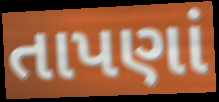
તાપણાં